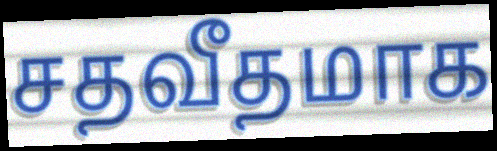
சதவீதமாக